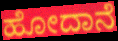
ಹೋದಾನೆ